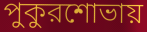
পুকুরশোভায়